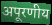
अपूरणीय